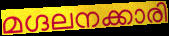
മഗ്ദലനക്കാരി